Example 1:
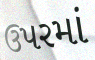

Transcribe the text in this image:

ઉપરમાં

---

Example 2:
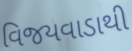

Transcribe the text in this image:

વિજયવાડાથી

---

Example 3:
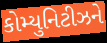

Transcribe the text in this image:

કોમ્યુનિટીઝને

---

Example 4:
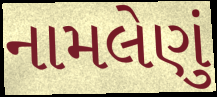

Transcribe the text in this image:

નામલેણું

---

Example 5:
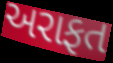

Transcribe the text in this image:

અરાફત